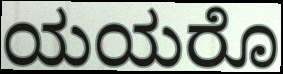
ಯಯರೊ